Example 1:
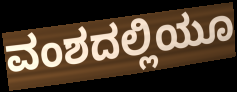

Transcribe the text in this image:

ವಂಶದಲ್ಲಿಯೂ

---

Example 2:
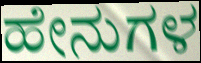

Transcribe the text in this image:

ಹೇನುಗಳ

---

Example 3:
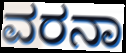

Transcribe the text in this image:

ವರನಾ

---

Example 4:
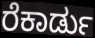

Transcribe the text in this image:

ರೆಕಾರ್ಡು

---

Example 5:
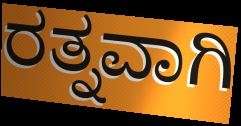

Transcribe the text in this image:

ರತ್ನವಾಗಿ